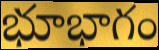
భూభాగం